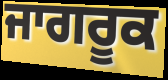
ਜਾਗਰੂਕ